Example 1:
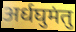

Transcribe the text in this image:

अर्धघुमंतु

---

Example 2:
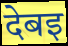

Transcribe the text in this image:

देबइ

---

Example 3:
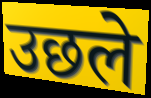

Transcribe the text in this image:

उछले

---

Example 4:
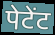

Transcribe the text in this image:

पेटेंट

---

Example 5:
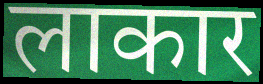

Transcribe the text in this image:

लाकार